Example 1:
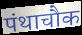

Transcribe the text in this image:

पंथाचौक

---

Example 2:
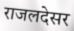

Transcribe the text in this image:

राजलदेसर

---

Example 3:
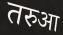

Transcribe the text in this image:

तरुआ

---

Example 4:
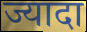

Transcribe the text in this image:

ज्‍यादा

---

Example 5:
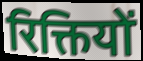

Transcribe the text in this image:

रिक्तियों